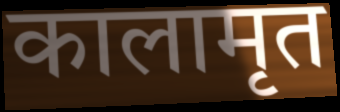
कालामृत